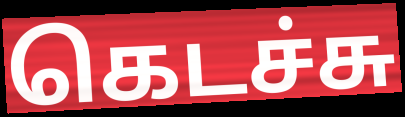
கெடச்சு